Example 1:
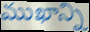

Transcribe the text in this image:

ముఖాన్ని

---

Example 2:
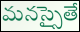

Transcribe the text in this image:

మనస్సైతే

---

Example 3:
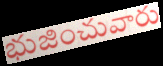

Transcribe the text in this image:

భుజించువారు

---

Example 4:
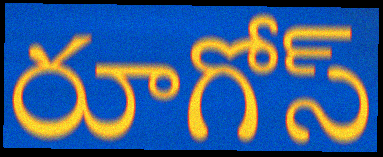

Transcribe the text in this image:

రూగోస్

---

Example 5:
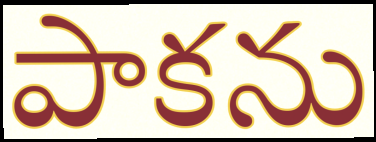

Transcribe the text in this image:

పాకను